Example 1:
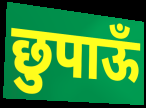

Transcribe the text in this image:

छुपाऊँ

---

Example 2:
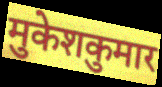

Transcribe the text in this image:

मुकेशकुमार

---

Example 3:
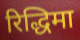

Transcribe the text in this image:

रिद्धिमा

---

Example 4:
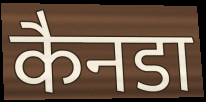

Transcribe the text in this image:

कैनडा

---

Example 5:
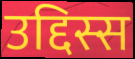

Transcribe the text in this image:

उद्दिस्स